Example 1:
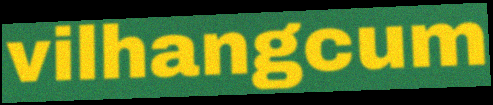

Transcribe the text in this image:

vilhangcum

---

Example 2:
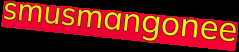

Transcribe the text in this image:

smusmangonee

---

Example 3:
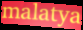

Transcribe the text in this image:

malatya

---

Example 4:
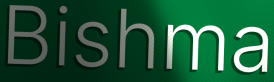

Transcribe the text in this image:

Bishma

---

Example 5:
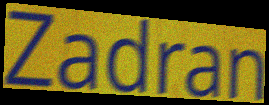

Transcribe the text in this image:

Zadran